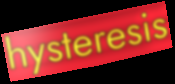
hysteresis